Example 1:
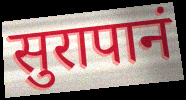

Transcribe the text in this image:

सुरापानं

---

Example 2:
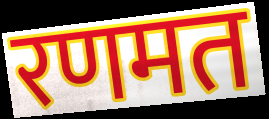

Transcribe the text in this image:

रणमत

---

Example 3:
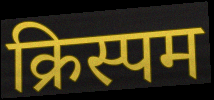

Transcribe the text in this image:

क्रिस्पम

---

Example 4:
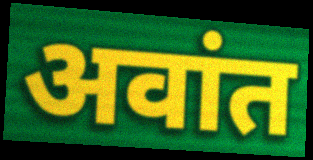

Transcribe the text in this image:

अवांत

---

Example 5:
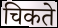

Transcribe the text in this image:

चिकते